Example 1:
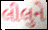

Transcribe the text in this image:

લીલુને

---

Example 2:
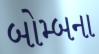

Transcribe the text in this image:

બોમ્બના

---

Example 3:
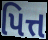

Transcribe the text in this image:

પિત્ત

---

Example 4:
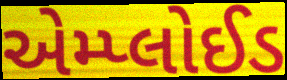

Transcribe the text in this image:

એમ્પ્લોઈડ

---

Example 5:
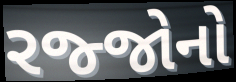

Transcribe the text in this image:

રજ્જોનો